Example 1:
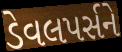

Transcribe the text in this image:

ડેવલપર્સને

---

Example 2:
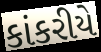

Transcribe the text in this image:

કાંકરીયે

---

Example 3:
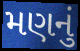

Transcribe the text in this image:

મણનું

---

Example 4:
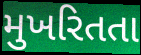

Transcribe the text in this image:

મુખરિતતા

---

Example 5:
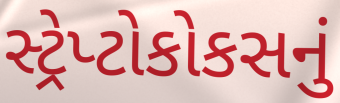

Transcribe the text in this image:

સ્ટ્રેપ્ટોકોકસનું